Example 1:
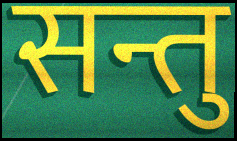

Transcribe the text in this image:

सन्‍तु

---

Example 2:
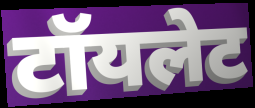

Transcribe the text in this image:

टॉयलेट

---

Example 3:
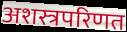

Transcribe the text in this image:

अशस्त्रपरिणत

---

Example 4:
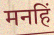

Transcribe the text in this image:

मनहिं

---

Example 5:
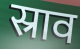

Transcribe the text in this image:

स्राव